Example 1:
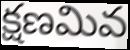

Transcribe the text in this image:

క్షణమివ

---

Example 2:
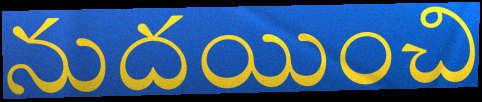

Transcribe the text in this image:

నుదయించి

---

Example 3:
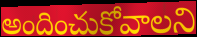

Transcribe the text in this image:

అందించుకోవాలని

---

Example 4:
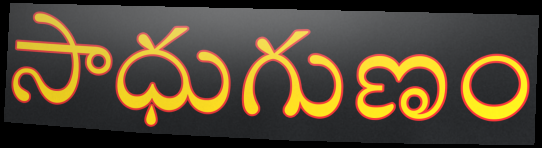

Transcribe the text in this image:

సాధుగుణం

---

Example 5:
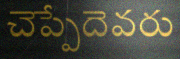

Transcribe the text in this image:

చెప్పేదెవరు